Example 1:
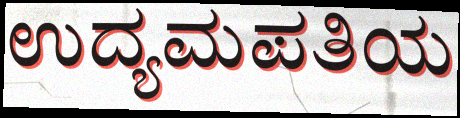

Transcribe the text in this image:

ಉದ್ಯಮಪತಿಯ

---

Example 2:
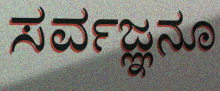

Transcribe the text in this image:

ಸರ್ವಜ್ಞನೂ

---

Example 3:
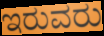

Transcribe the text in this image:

ಇರುವರು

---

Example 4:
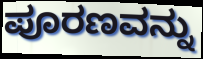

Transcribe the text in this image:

ಪೂರಣವನ್ನು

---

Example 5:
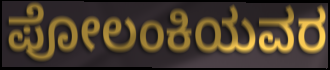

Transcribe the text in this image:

ಪೋಲಂಕಿಯವರ